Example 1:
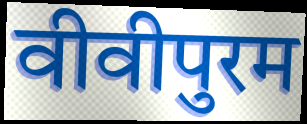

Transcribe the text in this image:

वीवीपुरम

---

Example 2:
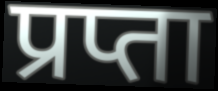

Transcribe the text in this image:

प्रप्ता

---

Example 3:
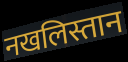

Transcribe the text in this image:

नखलिस्तान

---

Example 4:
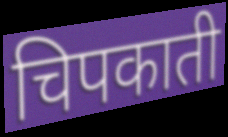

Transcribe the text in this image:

चिपकाती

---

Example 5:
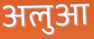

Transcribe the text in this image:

अलुआ